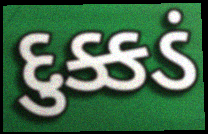
દુક્કડં